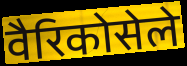
वैरिकोसेले